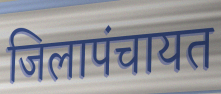
जिलापंचायत